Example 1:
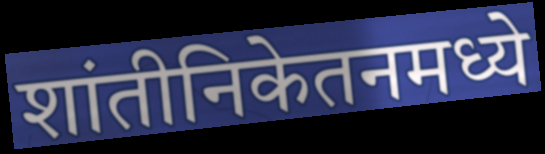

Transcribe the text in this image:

शांतीनिकेतनमध्ये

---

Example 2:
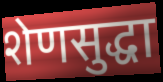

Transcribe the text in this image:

शेणसुद्धा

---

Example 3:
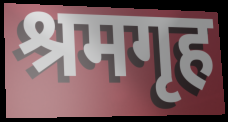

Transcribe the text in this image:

श्रमगृह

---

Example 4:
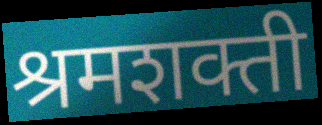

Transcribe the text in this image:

श्रमशक्ती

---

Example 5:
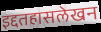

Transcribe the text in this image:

इद्दतहासलेखन